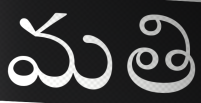
మతి